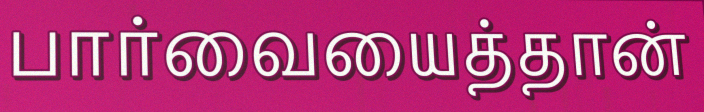
பார்வையைத்தான்